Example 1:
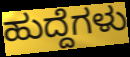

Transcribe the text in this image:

ಹುದ್ದೆಗಳು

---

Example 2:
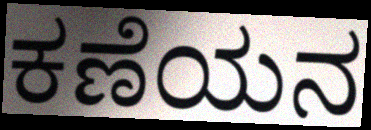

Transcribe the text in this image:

ಕಣೆಯನ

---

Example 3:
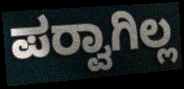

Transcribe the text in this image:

ಪರ‍್ವಾಗಿಲ್ಲ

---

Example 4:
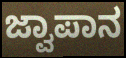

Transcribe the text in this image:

ಜ್ವಾಪಾನ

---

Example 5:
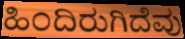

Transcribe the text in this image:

ಹಿಂದಿರುಗಿದೆವು